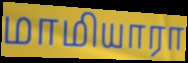
மாமியாரா